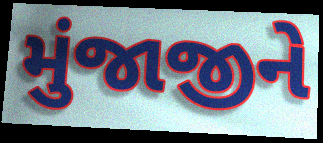
મુંજાજીને